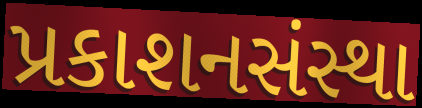
પ્રકાશનસંસ્થા